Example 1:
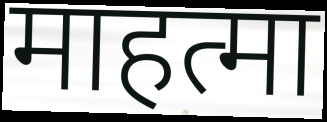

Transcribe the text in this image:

माहत्मा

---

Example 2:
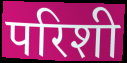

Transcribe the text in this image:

परिशी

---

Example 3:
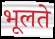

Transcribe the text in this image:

भूलते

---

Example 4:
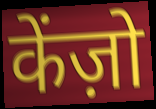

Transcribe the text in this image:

केंज़ो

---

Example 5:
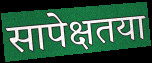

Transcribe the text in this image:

सापेक्षतया